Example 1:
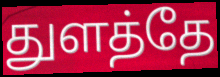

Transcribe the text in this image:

துளத்தே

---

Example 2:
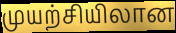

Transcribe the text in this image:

முயற்சியிலான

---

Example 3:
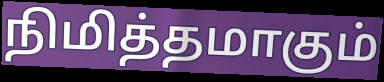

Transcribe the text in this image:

நிமித்தமாகும்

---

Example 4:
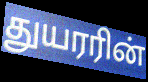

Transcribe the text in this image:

துயரரின்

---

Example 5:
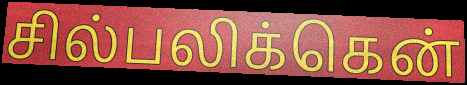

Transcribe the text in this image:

சில்பலிக்கென்